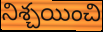
నిశ్చయించి